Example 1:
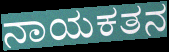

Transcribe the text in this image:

ನಾಯಕತನ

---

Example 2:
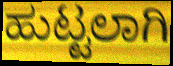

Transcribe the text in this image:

ಹುಟ್ಟಲಾಗಿ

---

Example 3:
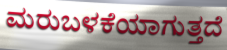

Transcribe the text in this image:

ಮರುಬಳಕೆಯಾಗುತ್ತದೆ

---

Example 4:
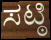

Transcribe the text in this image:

ಸಟ್ಠಿ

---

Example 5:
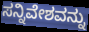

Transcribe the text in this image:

ಸನ್ನಿವೇಶವನ್ನು